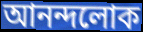
আনন্দলোক